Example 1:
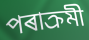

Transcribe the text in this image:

পৰাক্ৰমী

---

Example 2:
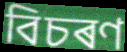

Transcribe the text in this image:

বিচৰণ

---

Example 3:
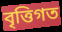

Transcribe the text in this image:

বৃত্তিগত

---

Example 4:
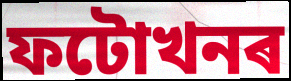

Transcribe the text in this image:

ফটোখনৰ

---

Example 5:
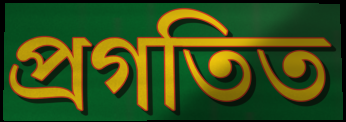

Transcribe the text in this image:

প্ৰগতিত